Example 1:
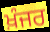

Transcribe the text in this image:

ਖ਼ੰਜਰ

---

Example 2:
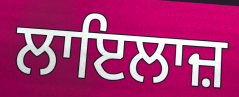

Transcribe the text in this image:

ਲਾਇਲਾਜ਼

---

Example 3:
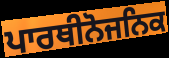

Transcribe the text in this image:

ਪਾਰਥੀਨੋਜਨਿਕ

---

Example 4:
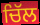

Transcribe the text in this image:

ਚਿੱਲ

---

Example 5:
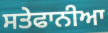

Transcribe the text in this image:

ਸਤੇਫਾਨੀਆ